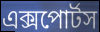
এক্সপোর্টস